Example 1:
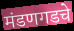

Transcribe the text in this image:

मंडणगडचे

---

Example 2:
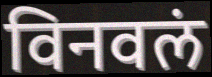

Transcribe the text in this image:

विनवलं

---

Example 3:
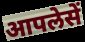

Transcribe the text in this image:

आपलेसें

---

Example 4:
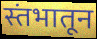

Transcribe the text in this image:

स्तंभातून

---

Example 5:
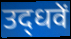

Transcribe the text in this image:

उद्धवें